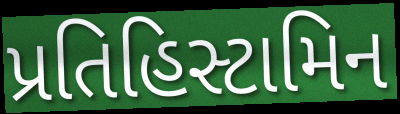
પ્રતિહિસ્ટામિન